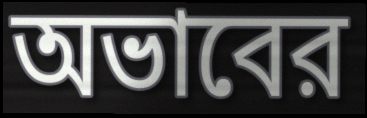
অভাবের